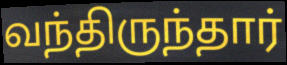
வந்திருந்தார்